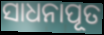
ସାଧନାପୂତ